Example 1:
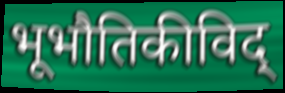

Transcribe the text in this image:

भूभौतिकीविद्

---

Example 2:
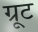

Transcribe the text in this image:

ग्रूट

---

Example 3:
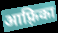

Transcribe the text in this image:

आफ़्रिका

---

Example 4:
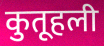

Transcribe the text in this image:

कुतूहली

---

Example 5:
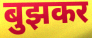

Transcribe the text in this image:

बुझकर